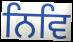
ਨਿਵਿ